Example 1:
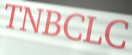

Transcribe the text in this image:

TNBCLC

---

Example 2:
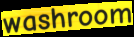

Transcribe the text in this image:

washroom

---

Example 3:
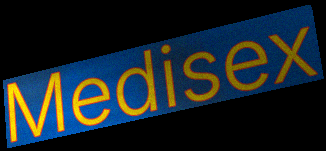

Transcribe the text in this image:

Medisex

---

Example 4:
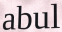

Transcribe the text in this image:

abul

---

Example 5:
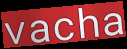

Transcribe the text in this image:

vacha